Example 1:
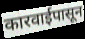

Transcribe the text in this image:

कारवाईपासून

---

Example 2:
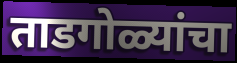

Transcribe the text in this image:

ताडगोळ्यांचा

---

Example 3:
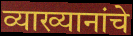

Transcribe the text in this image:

व्याख्यानांचे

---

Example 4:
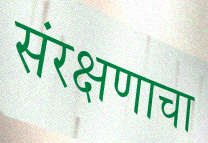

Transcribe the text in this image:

संरक्षणाचा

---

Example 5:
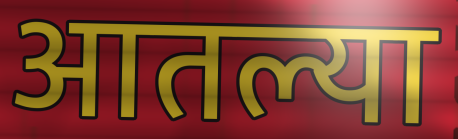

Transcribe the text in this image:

आतल्या